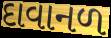
દાવાનળ